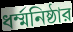
ধর্ম্মনিষ্ঠার